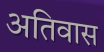
अतिवास